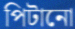
পিটানো